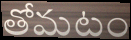
తోమటం